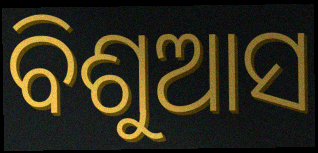
ବିଶୁଆସ